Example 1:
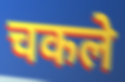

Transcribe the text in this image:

चकले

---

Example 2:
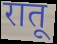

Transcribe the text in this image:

रातू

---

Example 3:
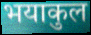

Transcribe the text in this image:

भयाकुल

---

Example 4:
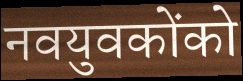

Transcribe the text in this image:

नवयुवकोंको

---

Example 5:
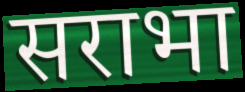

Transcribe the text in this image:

सराभा